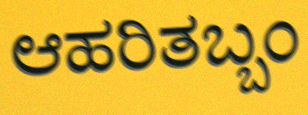
ಆಹರಿತಬ್ಬಂ